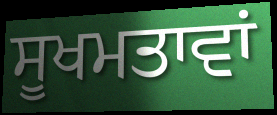
ਸੂਖਮਤਾਵਾਂ